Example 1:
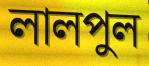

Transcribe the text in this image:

লালপুল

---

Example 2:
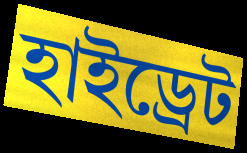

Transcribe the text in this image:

হাইড্রেট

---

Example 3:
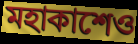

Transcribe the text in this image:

মহাকাশেও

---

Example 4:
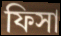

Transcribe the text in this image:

ফিসা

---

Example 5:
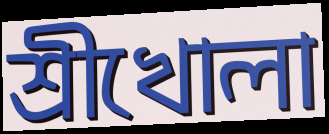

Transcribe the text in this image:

শ্রীখোলা